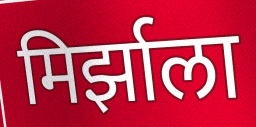
मिर्झाला